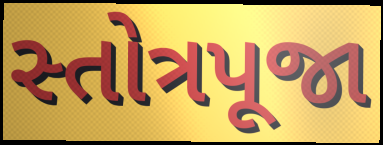
સ્તોત્રપૂજા